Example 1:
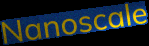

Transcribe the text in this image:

Nanoscale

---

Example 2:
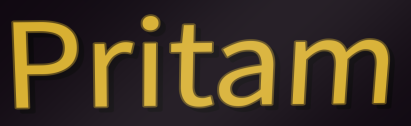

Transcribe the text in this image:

Pritam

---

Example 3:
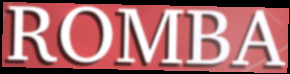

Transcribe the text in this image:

ROMBA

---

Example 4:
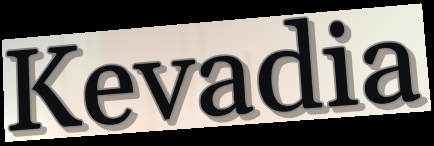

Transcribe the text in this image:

Kevadia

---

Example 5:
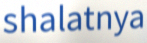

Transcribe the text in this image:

shalatnya